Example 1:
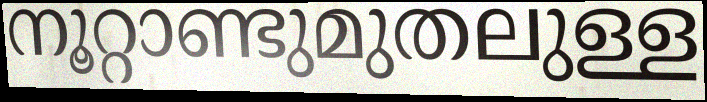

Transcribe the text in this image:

നൂറ്റാണ്ടുമുതലുള്ള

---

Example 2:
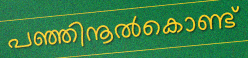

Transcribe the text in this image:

പഞ്ഞിനൂൽകൊണ്ട്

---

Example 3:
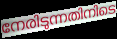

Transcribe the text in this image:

നേരിടുന്നതിനിടെ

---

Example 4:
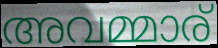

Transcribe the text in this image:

അവമ്മാര്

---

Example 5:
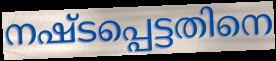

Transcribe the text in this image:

നഷ്ടപ്പെട്ടതിനെ